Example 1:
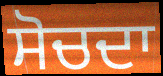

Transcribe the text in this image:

ਸੋਚਦਾ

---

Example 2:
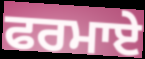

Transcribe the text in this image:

ਫਰਮਾਏ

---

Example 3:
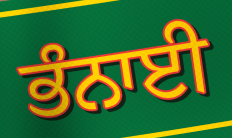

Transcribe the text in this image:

ਭੰਨਾਈ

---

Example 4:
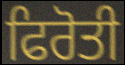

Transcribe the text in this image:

ਫਿਰੋਤੀ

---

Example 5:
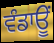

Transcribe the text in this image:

ਵੰਡਾਊਂ